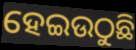
ହେଇଉଠୁଛି